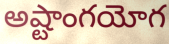
అష్టాంగయోగ